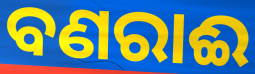
ବଣରାଈ